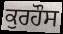
ਕੁਰਹੌਸ